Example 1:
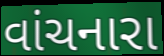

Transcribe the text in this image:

વાંચનારા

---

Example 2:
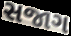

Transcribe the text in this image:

સજાગ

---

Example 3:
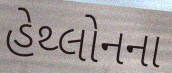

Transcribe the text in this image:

હેથ્લોનના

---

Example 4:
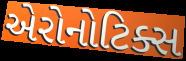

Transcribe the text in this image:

એરોનોટિક્સ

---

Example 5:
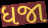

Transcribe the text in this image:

ધજા